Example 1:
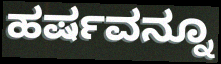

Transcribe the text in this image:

ಹರ್ಷವನ್ನೂ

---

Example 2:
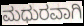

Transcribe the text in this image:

ಮಧುರವಾಗಿ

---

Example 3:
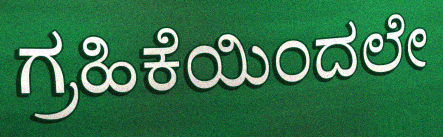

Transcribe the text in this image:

ಗ್ರಹಿಕೆಯಿಂದಲೇ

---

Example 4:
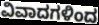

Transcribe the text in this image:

ವಿವಾದಗಳಿಂದ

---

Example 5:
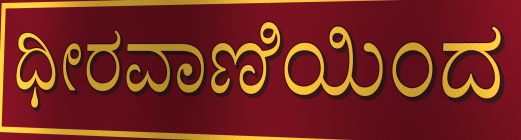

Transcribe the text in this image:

ಧೀರವಾಣಿಯಿಂದ